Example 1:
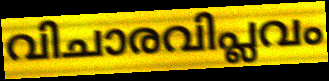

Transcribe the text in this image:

വിചാരവിപ്ലവം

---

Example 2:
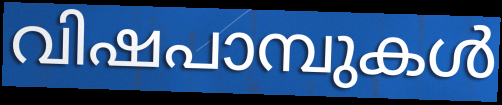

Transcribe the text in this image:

വിഷപാമ്പുകൾ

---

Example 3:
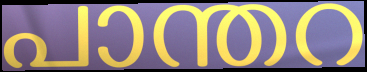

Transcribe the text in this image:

പാന്തറ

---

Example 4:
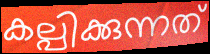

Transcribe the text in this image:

കല്പിക്കുന്നത്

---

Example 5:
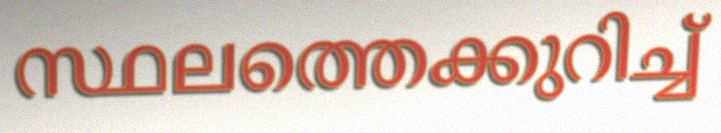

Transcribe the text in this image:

സ്ഥലത്തെക്കുറിച്ച്